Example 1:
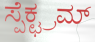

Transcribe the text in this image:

ಸ್ಪೆಕ್ಟ್ರಮ್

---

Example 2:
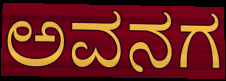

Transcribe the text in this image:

ಅವನಗ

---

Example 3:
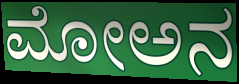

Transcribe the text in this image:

ಮೋಅನ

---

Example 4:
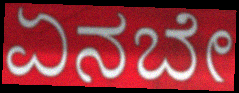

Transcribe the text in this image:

ಏನಬೇ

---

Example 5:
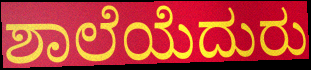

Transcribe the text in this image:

ಶಾಲೆಯೆದುರು